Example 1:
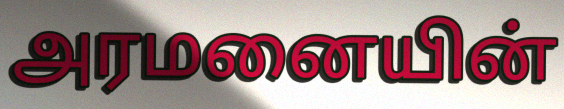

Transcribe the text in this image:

அரமனையின்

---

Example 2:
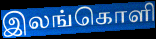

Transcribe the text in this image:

இலங்கொளி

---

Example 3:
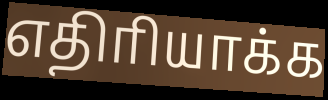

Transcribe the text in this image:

எதிரியாக்க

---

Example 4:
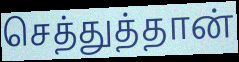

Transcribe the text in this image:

செத்துத்தான்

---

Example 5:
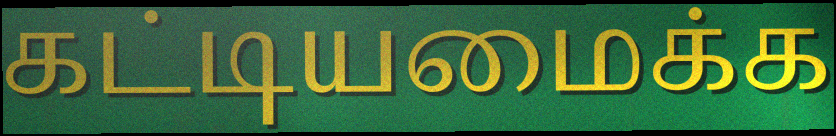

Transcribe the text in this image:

கட்டியமைக்க